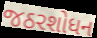
જઠરશોધન